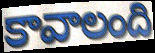
కావాలంది